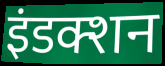
इंडक्शन